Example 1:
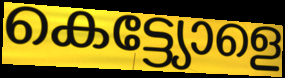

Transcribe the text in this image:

കെട്ട്യോളെ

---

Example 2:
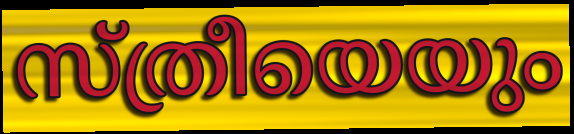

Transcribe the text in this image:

സ്ത്രീയെയും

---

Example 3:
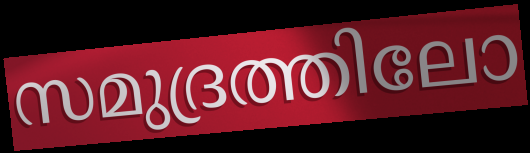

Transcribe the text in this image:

സമുദ്രത്തിലോ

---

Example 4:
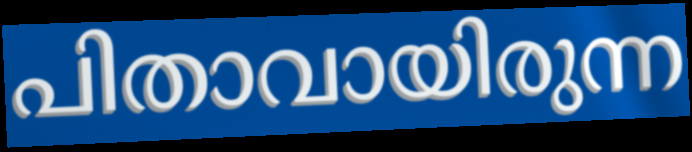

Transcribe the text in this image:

പിതാവായിരുന്ന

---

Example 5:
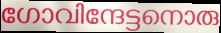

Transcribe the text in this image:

ഗോവിന്ദേട്ടനൊരു